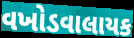
વખોડવાલાયક